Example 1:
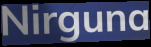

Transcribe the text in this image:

Nirguna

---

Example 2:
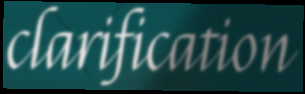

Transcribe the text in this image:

clarification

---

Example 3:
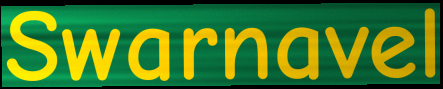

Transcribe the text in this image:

Swarnavel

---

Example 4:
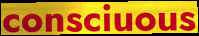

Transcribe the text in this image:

consciuous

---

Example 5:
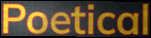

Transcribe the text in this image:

Poetical